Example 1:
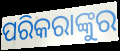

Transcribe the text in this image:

ପରିକରାଙ୍କୁର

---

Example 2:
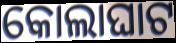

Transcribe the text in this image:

କୋଲାଘାଟ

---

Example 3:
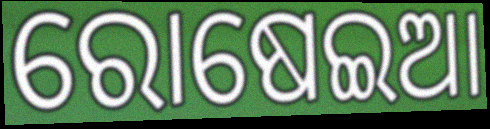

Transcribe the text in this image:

ରୋଷେଇଆ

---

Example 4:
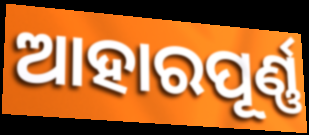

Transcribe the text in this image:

ଆହାରପୂର୍ଣ୍ଣ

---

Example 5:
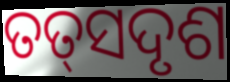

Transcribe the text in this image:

ତତ୍‌ସଦୃଶ